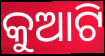
କୁଆଟି